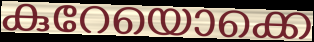
കുറേയൊക്കെ